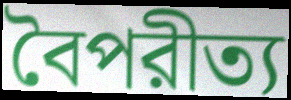
বৈপরীত্য